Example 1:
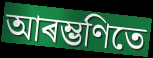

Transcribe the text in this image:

আৰম্ভণিতে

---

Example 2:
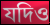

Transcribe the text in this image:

যদিও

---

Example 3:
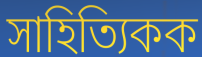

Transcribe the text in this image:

সাহিত্যিকক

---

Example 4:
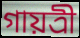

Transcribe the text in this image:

গায়ত্ৰী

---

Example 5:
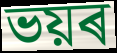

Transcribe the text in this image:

ভয়ৰ